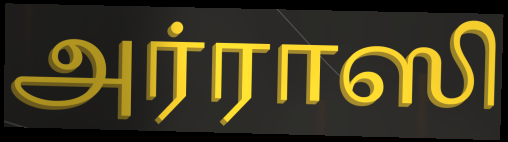
அர்ராஸி